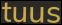
tuus